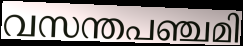
വസന്തപഞ്ചമി